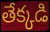
తేక్కడి